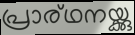
പ്രാര്ഥനയ്ക്കു